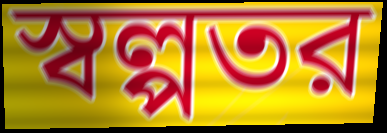
স্বল্পতর